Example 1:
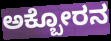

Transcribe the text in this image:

ಅಕ್ಬೋರನ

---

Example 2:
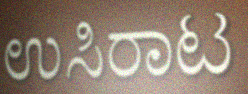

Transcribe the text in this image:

ಉಸಿರಾಟ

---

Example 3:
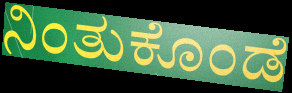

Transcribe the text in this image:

ನಿಂತುಕೊಂಡೆ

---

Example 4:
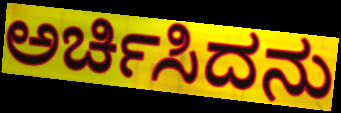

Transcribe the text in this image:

ಅರ್ಚಿಸಿದನು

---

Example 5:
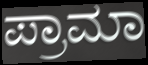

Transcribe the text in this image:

ಪ್ರಾಮಾ